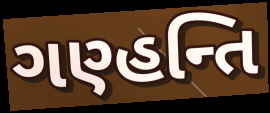
ગણ્હન્તિ